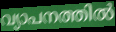
വ്യാപനത്തിൽ